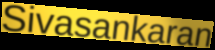
Sivasankaran